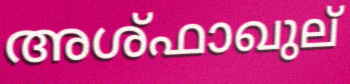
അശ്ഫാഖുല്